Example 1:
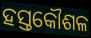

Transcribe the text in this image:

ହସ୍ତକୌଶଳ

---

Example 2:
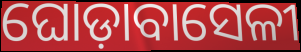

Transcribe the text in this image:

ଘୋଡ଼ାବାସେଳୀ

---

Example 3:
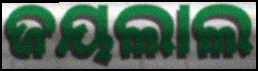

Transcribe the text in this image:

ଜୟଲାଲ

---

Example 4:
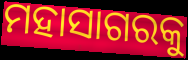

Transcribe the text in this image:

ମହାସାଗରକୁ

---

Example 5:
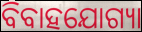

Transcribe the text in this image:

ବିବାହଯୋଗ୍ୟା